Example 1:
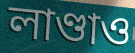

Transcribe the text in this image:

লাণ্ডাও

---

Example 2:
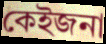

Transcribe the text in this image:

কেইজনা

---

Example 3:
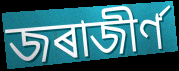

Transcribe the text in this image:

জৰাজীৰ্ণ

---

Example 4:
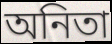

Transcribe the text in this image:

অনিতা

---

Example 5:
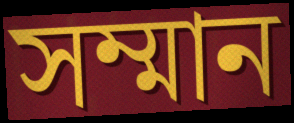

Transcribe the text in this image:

সম্মান